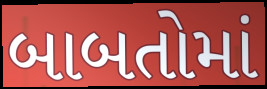
બાબતોમાં